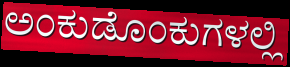
ಅಂಕುಡೊಂಕುಗಳಲ್ಲಿ